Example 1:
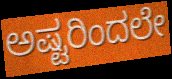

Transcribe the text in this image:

ಅಷ್ಟರಿಂದಲೇ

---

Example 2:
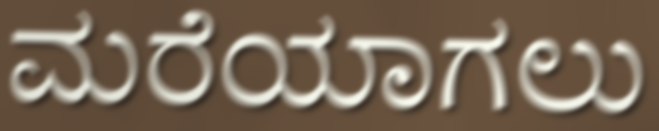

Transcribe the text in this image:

ಮರೆಯಾಗಲು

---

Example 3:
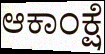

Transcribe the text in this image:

ಆಕಾಂಕ್ಷೆ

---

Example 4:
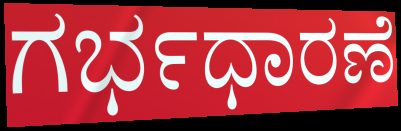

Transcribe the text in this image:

ಗರ್ಭಧಾರಣೆ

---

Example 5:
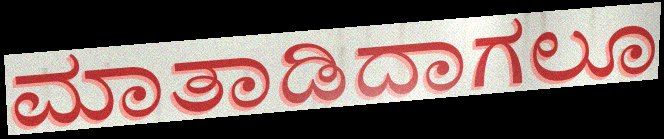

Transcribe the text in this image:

ಮಾತಾಡಿದಾಗಲೂ